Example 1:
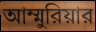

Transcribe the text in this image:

আম্মুরিয়ার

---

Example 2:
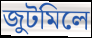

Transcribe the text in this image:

জুটমিলে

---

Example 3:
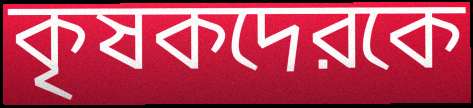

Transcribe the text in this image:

কৃষকদেরকে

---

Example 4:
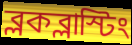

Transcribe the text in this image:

ব্লকব্লাস্টিং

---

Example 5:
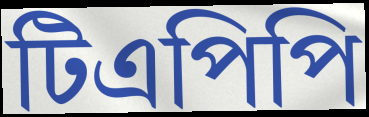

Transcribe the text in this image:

টিএপিপি